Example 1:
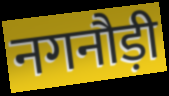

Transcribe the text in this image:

नगनौड़ी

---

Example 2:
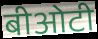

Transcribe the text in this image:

बीओटी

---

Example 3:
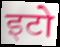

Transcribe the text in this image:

इटो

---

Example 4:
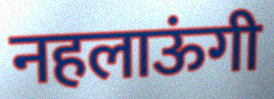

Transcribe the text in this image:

नहलाऊंगी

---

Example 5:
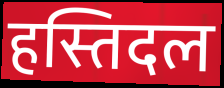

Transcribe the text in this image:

हस्तिदल